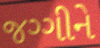
જગ્ગીને